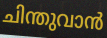
ചിന്തുവാൻ